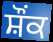
ਸ਼ੌਂਕ